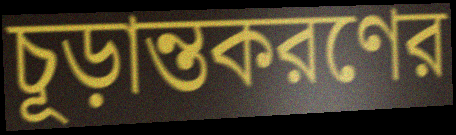
চূড়ান্তকরণের